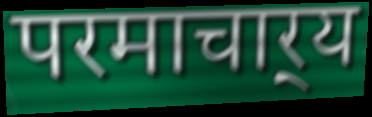
परमाचार्य